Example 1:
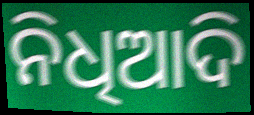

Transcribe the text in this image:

ନିଧିଆଦି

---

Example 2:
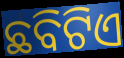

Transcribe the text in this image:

ଛବିଟିଏ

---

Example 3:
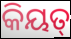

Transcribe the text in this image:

କିୟତ୍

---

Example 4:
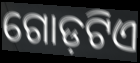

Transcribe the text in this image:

ଗୋଡ଼ଟିଏ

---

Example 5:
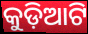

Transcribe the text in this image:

କୁଡ଼ିଆଟି